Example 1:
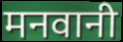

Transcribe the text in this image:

मनवानी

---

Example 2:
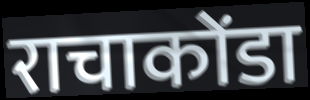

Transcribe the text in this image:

राचाकोंडा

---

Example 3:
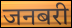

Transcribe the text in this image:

जनबरी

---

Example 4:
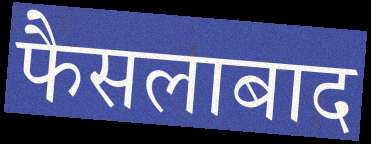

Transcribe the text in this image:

फैसलाबाद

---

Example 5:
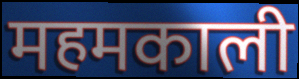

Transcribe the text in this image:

महमकाली